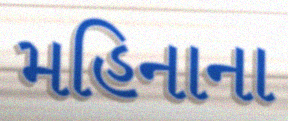
મહિનાના